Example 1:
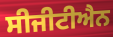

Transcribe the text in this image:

ਸੀਜੀਟੀਐਨ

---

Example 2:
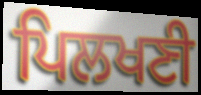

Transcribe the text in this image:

ਪਿਲਖਣੀ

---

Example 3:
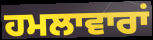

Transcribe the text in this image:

ਹਮਲਾਵਾਰਾਂ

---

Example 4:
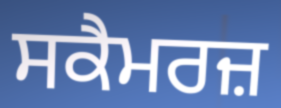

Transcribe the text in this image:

ਸਕੈਮਰਜ਼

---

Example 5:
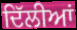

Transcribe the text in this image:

ਦਿੱਲੀਆਂ